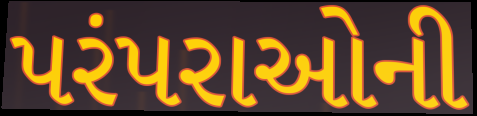
પરંપરાઓની